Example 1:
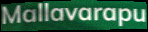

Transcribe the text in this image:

Mallavarapu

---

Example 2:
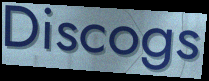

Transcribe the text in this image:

Discogs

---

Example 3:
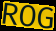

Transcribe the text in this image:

ROG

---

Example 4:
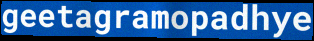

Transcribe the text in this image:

geetagramopadhye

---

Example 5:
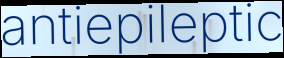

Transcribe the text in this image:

antiepileptic